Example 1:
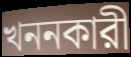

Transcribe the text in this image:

খননকারী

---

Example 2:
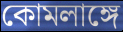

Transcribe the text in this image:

কোমলাঙ্গে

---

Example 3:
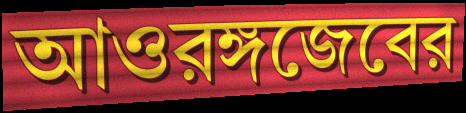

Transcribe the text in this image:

আওরঙ্গজেবের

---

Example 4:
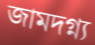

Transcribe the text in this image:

জামদগ্ন্য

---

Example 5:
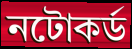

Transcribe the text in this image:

নটোকর্ড